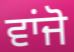
ਵਾਂਜੋ